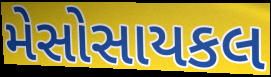
મેસોસાયકલ